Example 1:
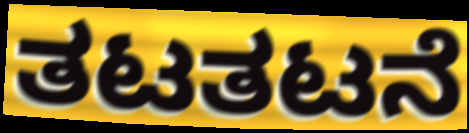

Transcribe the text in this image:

ತಟತಟನೆ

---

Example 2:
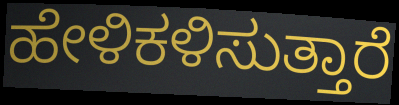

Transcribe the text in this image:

ಹೇಳಿಕಳಿಸುತ್ತಾರೆ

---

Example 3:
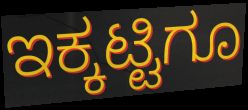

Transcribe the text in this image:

ಇಕ್ಕಟ್ಟಿಗೂ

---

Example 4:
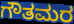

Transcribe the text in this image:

ಗೌತಮರ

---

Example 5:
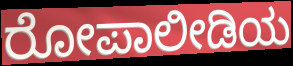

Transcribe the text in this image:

ರೋಪಾಲೀಡಿಯ